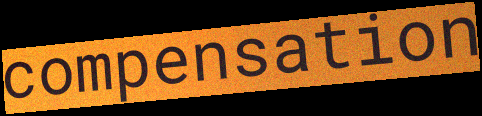
compensation